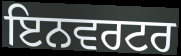
ਇਨਵਰਟਰ